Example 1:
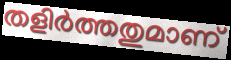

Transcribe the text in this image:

തളിർത്തതുമാണ്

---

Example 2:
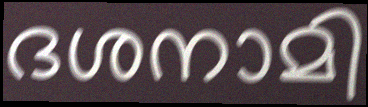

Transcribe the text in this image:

ദശനാമി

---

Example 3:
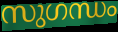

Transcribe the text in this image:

സുഗന്ധം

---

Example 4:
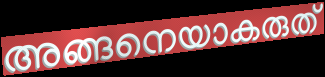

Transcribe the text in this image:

അങ്ങനെയാകരുത്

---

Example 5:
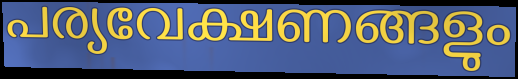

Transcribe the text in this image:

പര്യവേക്ഷണങ്ങളും